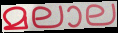
മലാല